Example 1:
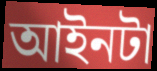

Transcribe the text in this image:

আইনটা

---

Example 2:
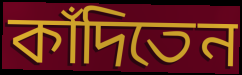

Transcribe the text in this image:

কাঁদিতেন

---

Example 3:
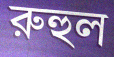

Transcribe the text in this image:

রুহুল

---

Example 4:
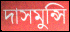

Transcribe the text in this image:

দাসমুন্সি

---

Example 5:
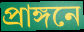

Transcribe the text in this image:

প্রাঙ্গনে